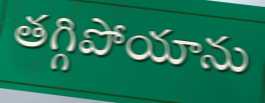
తగ్గిపోయాను